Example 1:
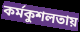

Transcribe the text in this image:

কর্মকুশলতায়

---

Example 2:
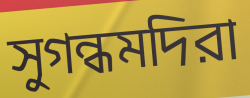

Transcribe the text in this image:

সুগন্ধমদিরা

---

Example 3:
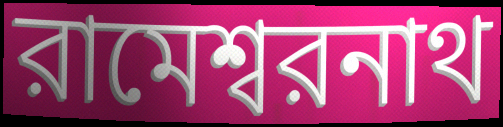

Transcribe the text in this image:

রামেশ্বরনাথ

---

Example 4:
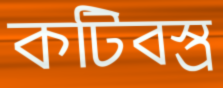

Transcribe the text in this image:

কটিবস্ত্র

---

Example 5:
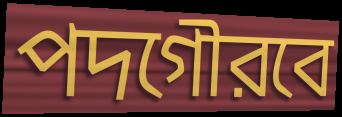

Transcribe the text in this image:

পদগৌরবে